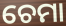
ଚେମା